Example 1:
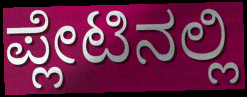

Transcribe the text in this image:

ಪ್ಲೇಟಿನಲ್ಲಿ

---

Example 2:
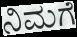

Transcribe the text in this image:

ನಿಮಗೆ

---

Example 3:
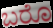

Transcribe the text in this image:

ಬರೊ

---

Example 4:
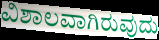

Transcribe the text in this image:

ವಿಶಾಲವಾಗಿರುವುದು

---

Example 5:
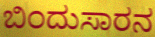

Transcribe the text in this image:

ಬಿಂದುಸಾರನ